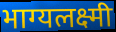
भाग्यलक्ष्मी